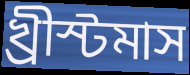
খ্রীস্টমাস